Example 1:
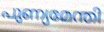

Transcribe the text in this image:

പുണ്യമേന്തി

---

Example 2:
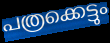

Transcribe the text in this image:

പത്രക്കെട്ടും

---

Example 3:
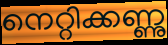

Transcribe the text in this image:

നെറ്റിക്കണ്ണു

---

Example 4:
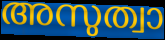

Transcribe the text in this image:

അസുത്വാ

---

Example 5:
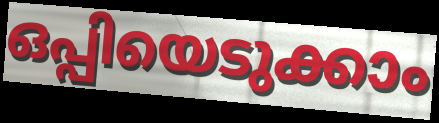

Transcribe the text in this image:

ഒപ്പിയെടുക്കാം